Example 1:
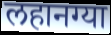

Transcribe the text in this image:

लहानग्या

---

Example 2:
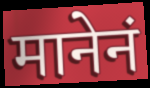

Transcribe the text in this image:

मानेनं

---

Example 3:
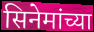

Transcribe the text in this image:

सिनेमांच्या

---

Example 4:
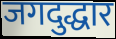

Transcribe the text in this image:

जगदुद्धार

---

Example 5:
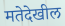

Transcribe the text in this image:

मतेदेखील